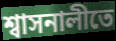
শ্বাসনালীতে